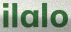
ilalo